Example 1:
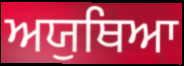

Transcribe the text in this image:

ਅਯੁਥਿਆ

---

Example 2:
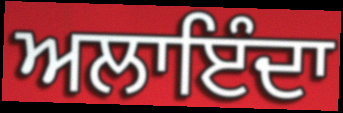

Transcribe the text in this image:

ਅਲਾਇੰਦਾ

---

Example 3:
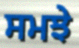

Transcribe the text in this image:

ਸਮਝੇ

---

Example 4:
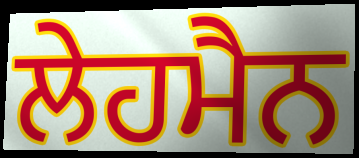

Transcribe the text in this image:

ਲੇਹਮੈਨ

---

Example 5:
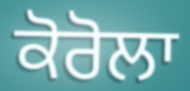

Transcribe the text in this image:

ਕੋਰੋਲਾ